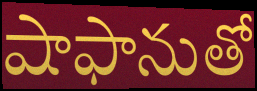
షాఫానుతో